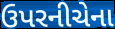
ઉપરનીચેના